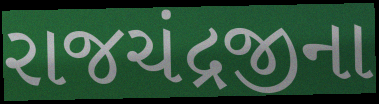
રાજચંદ્રજીના